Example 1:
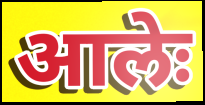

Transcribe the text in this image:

आलेः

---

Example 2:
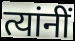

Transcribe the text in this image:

त्यांनीं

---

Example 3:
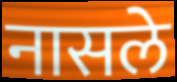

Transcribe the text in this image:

नासले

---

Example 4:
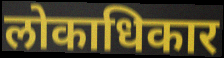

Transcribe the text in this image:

लोकाधिकार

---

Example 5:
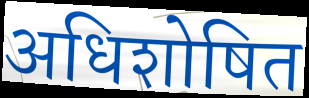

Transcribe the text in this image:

अधिशोषित